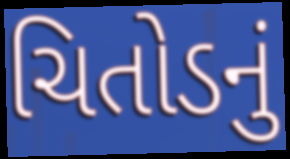
ચિતોડનું